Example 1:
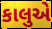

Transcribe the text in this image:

કાલુએ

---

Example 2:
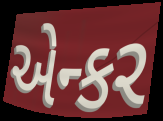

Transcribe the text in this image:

એન્કર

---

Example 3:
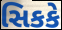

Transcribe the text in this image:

સિકકે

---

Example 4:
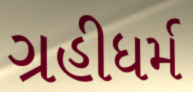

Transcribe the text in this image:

ગ્રહીધર્મ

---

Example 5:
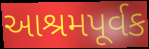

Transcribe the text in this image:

આશ્રમપૂર્વક